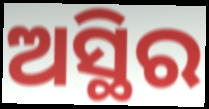
ଅସ୍ଥିର